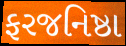
ફરજનિષ્ઠા